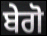
ਬੇਗੋ